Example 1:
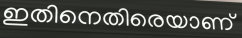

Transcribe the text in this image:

ഇതിനെതിരെയാണ്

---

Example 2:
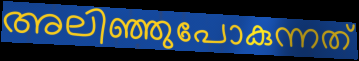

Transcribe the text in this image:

അലിഞ്ഞുപോകുന്നത്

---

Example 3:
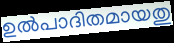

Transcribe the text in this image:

ഉൽപാദിതമായതു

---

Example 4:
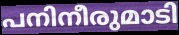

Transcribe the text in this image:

പനിനീരുമാടി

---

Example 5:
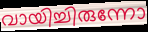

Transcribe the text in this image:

വായിച്ചിരുന്നോ